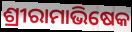
ଶ୍ରୀରାମାଭିଷେକ